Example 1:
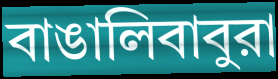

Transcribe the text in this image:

বাঙালিবাবুরা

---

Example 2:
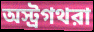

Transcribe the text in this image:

অস্ট্রগথরা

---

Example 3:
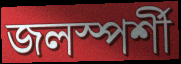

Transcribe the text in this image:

জলস্পর্শী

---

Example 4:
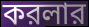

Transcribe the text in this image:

করলার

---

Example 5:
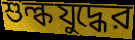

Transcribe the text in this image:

শুল্কযুদ্ধের